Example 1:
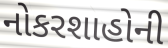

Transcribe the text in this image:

નોકરશાહોની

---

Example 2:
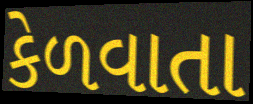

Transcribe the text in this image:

કેળવાતા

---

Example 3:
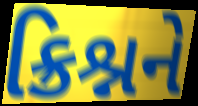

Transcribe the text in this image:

ક્રિશ્નને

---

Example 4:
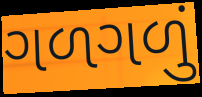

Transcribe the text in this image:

ગળગળું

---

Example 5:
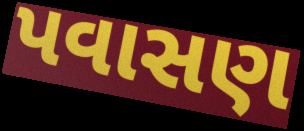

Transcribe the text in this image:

પવાસણ